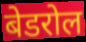
बेडरोल